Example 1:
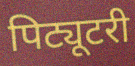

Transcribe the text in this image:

पिट्यूटरी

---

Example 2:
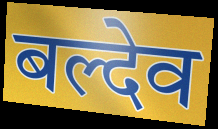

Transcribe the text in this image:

बल्देव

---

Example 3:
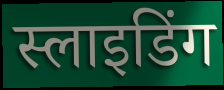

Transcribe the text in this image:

स्लाइडिंग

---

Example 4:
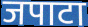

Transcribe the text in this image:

जपाटा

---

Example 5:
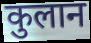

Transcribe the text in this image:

कुलान